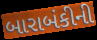
બારાબંકીની